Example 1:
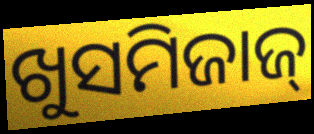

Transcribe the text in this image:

ଖୁସମିଜାଜ୍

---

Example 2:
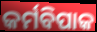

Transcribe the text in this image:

କର୍ମବିପାକ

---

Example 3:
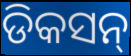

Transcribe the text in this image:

ଡିକସନ୍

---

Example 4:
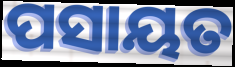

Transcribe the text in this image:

ପସାୟତ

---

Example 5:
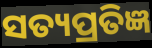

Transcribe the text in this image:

ସତ୍ୟପ୍ରତିଜ୍ଞ